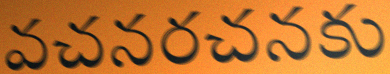
వచనరచనకు